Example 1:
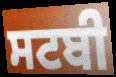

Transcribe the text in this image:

ਸਟਬੀ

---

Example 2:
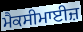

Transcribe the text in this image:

ਮੈਕਸੀਮਾਈਜ਼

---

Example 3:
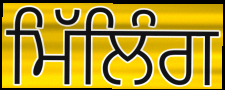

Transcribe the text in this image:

ਮਿੱਲਿੰਗ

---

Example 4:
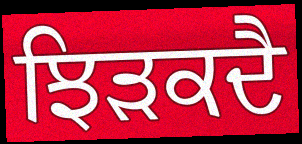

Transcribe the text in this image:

ਝਿੜਕਦੈ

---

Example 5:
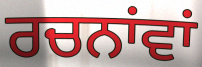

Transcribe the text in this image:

ਰਚਨਾਂਵਾਂ